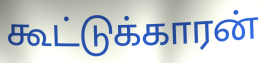
கூட்டுக்காரன்